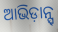
ଆଭିଡ଼ାନ୍ସ୍